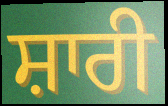
ਸ਼ਾਰੀ